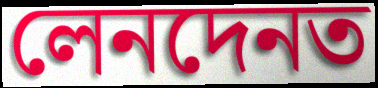
লেনদেনত